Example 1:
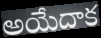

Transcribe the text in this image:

అయేదాక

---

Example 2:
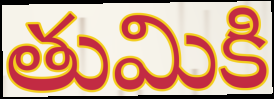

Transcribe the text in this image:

తుమికి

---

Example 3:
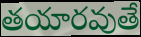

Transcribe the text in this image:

తయారవుతే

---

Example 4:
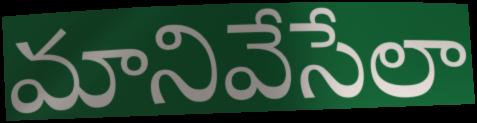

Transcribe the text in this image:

మానివేసేలా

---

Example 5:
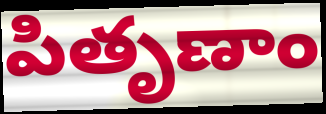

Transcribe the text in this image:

పితృణాం